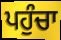
ਪਹੁੰਚਾ